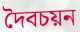
দৈবচয়ন